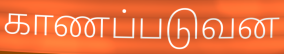
காணப்படுவன